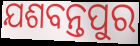
ଯଶବନ୍ତପୁର